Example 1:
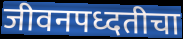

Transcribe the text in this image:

जीवनपध्दतीचा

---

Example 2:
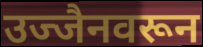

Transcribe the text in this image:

उज्जैनवरून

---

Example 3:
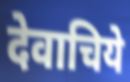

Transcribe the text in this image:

देवाचिये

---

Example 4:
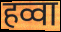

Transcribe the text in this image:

हव्वा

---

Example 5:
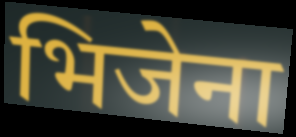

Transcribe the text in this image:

भिजेना